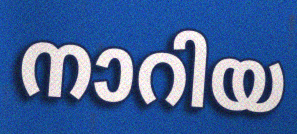
നാറിയ